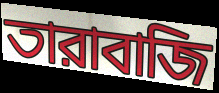
তারাবাজি